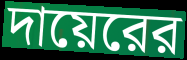
দায়েরের